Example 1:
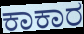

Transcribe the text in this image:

ಕಾಕಾರ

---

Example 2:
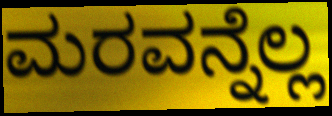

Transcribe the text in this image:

ಮರವನ್ನೆಲ್ಲ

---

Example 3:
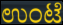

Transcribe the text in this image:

ಉಂಟೆ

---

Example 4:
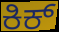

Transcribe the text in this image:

ಕಿಕ್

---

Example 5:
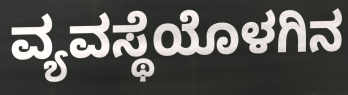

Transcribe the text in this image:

ವ್ಯವಸ್ಥೆಯೊಳಗಿನ